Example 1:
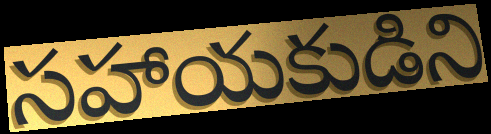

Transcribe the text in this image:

సహాయకుడిని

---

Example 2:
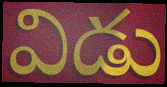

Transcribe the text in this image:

విడు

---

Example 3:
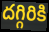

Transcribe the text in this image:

దగ్గిరికి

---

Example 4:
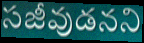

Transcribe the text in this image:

సజీవుడనని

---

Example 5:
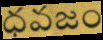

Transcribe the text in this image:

ధవజం